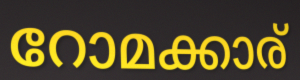
റോമക്കാര്